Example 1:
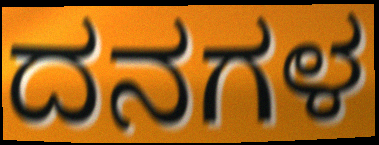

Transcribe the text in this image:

ದನಗಳ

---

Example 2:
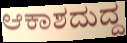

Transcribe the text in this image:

ಆಕಾಶದುದ್ದ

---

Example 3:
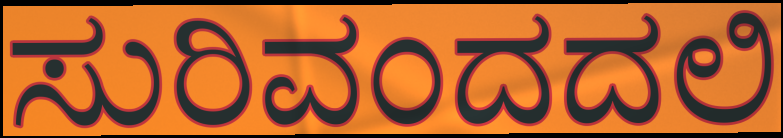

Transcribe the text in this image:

ಸುರಿವಂದದಲಿ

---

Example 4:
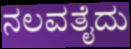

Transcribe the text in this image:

ನಲವತೈದು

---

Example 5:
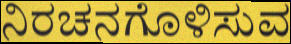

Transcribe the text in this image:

ನಿರಚನಗೊಳಿಸುವ